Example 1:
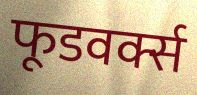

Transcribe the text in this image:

फूडवर्क्स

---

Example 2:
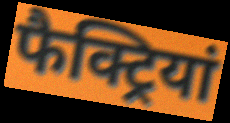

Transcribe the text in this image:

फैक्ट्रियां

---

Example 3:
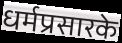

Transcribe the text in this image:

धर्मप्रसारके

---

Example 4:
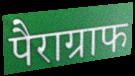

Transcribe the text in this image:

पैराग्राफ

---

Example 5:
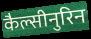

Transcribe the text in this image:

कैल्सीनुरिन